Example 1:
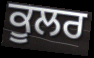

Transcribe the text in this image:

ਕੂਲਰ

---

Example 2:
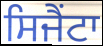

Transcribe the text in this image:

ਸਿਜੈਂਟਾ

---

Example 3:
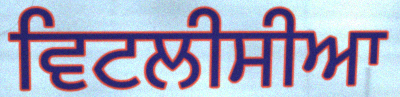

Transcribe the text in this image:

ਵਿਟਲੀਸੀਆ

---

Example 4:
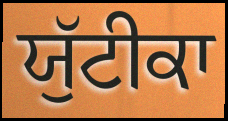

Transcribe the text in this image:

ਯੁੱਟੀਕਾ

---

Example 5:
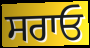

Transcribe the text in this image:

ਸਰਾਓ